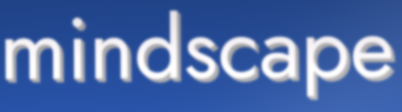
mindscape